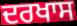
ਦਰਖਾਸ